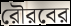
রৌরবের